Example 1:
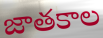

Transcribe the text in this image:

జాతకాల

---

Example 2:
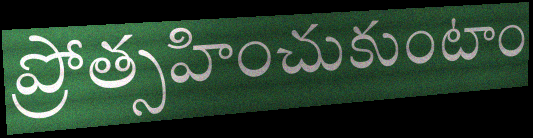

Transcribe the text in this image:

ప్రోత్సహించుకుంటాం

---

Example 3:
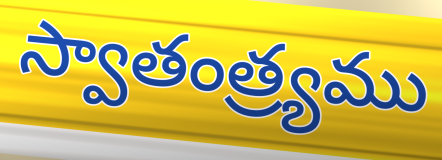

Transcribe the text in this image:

స్వాతంత్ర్యము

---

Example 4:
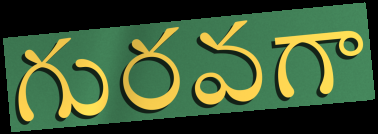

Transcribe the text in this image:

గురవగా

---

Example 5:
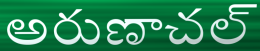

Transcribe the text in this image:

అరుణాచల్